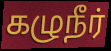
கழுநீர்